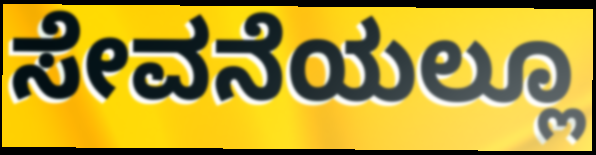
ಸೇವನೆಯಲ್ಲೂ